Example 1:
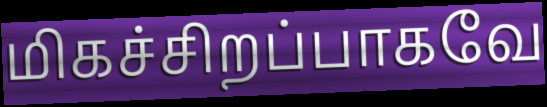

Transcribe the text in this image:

மிகச்சிறப்பாகவே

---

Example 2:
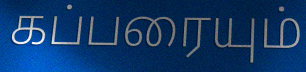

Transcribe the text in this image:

கப்பரையும்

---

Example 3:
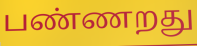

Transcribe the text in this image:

பண்ணறது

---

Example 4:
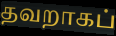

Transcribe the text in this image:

தவறாகப்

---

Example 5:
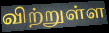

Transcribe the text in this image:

விற்றுள்ள